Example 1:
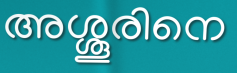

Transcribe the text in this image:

അശ്ശൂരിനെ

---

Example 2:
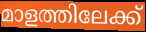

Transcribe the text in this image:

മാളത്തിലേക്ക്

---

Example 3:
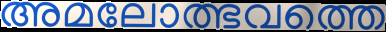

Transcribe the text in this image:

അമലോത്ഭവത്തെ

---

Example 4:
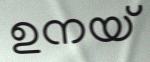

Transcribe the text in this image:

ഉനയ്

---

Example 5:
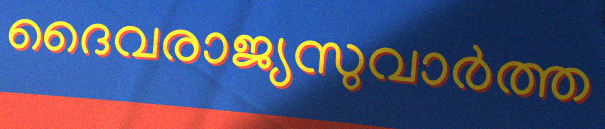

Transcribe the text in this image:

ദൈവരാജ്യസുവാർത്ത